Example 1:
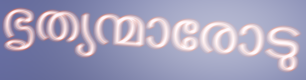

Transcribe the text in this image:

ഭൃത്യന്മാരോടു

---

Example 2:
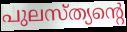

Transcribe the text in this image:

പുലസ്ത്യന്റെ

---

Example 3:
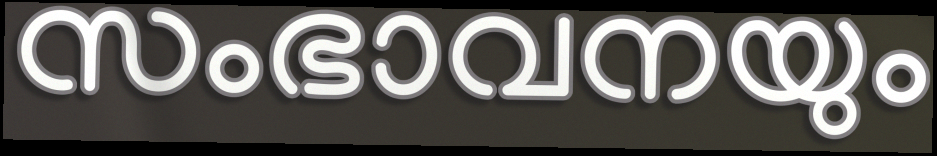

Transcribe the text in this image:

സംഭാവനയും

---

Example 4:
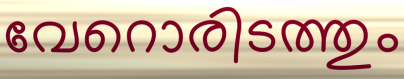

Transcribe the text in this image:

വേറൊരിടത്തും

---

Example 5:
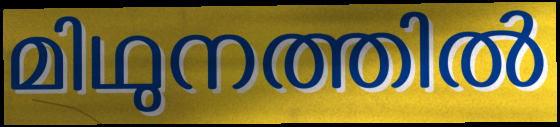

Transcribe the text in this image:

മിഥുനത്തിൽ